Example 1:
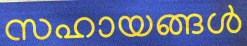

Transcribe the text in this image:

സഹായങ്ങൾ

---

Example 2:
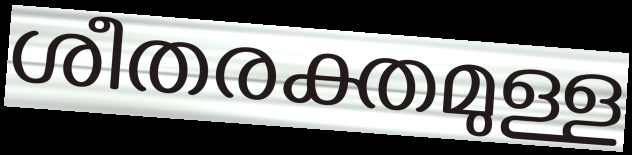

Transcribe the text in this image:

ശീതരക്തമുള്ള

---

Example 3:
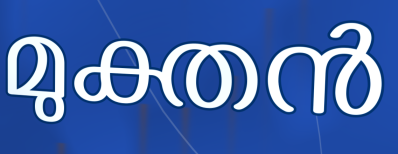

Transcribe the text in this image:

മുക്തൻ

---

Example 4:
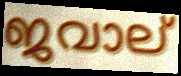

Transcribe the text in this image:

ജവാല്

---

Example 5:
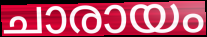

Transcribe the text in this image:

ചാരായം